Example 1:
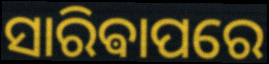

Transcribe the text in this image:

ସାରିଵାପରେ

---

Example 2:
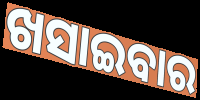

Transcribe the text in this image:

ଖସାଇବାର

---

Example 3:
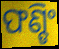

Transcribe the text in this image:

ଫଣ୍ଡିଂ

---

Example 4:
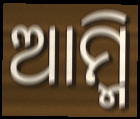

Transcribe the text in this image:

ଆମ୍ମି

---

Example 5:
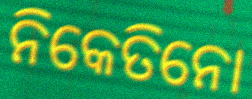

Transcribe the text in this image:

ନିକେତିନୋ